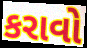
કરાવો